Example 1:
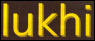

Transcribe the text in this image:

lukhi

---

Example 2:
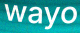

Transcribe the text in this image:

wayo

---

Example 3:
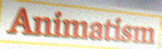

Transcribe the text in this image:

Animatism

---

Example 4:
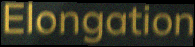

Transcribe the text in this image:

Elongation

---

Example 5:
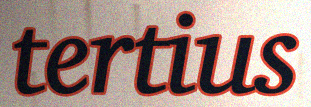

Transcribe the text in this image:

tertius